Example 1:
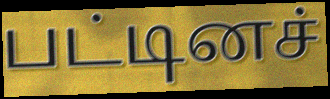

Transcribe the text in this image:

பட்டினச்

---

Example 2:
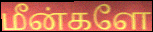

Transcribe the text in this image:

மீன்களே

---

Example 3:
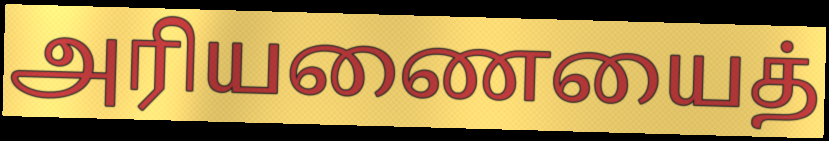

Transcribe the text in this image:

அரியணையைத்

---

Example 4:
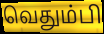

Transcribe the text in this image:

வெதும்பி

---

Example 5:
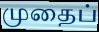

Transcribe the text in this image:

முதைப்